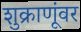
शुक्राणूंवर